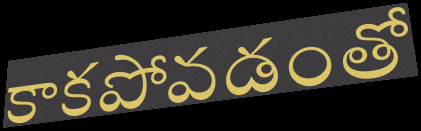
కాకపోవడంతో